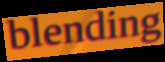
blending